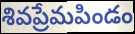
శివప్రేమపిండం